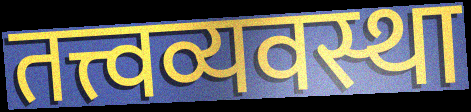
तत्त्वव्यवस्था